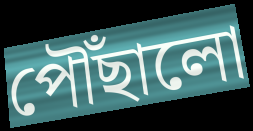
পৌঁছালো